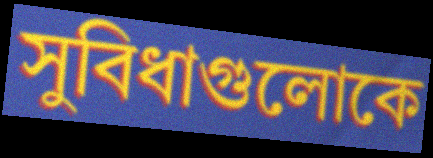
সুবিধাগুলোকে